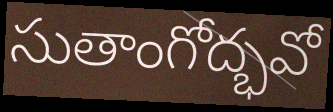
సుతాంగోద్భవో